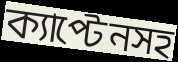
ক্যাপ্টেনসহ